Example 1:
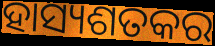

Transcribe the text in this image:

ହାସ୍ୟଶତକର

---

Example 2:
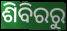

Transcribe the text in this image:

ଶିବିରରୁ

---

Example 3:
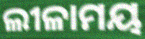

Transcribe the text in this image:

ଲୀଳାମୟ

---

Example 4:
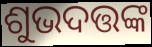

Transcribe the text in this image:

ଶୁଭଦତ୍ତଙ୍କ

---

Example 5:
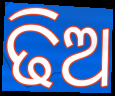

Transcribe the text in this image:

ଢିଅ